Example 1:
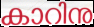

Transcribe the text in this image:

കാറിനു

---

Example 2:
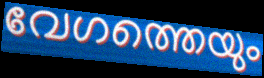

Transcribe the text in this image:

വേഗത്തെയും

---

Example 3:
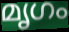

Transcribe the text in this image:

മൃഗം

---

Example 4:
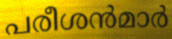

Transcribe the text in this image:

പരീശൻമാർ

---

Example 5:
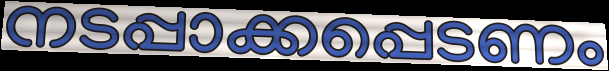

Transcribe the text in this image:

നടപ്പാക്കപ്പെടണം